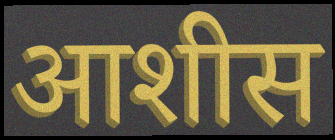
आशीस